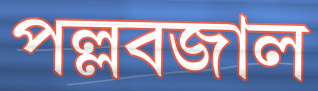
পল্লবজাল